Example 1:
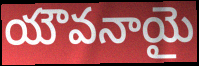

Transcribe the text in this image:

యౌవనాయై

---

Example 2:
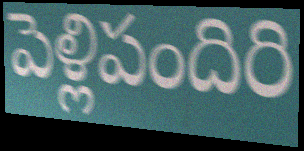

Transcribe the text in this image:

పెళ్లిపందిరి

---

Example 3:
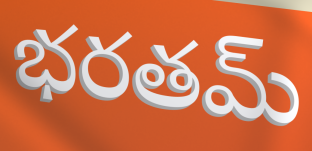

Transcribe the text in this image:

భరతమ్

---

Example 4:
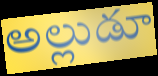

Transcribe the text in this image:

అల్లుడూ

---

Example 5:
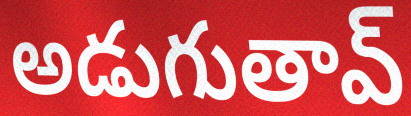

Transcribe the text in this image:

అడుగుతావ్